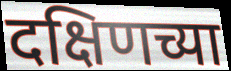
दक्षिणच्या